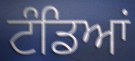
ਟੰਡਿਆਂ